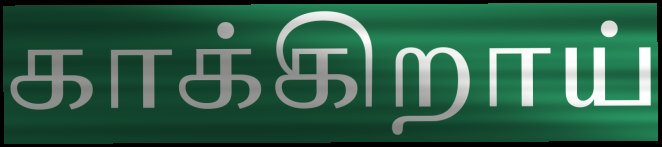
காக்கிறாய்